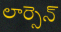
లార్సెన్